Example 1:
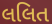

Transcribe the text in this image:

લલિત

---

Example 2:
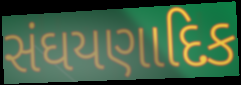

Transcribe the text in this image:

સંઘયણાદિક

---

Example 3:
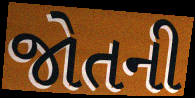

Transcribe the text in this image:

જોતની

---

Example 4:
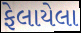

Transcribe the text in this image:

ફેલાયેલા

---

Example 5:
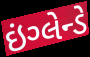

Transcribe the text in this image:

ઇંગ્લેન્ડે